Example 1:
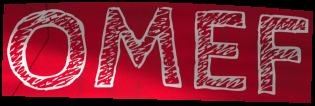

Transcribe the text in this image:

OMEF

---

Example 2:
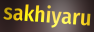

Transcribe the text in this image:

sakhiyaru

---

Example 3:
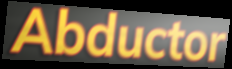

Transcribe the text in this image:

Abductor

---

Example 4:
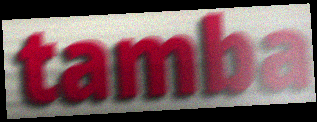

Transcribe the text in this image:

tamba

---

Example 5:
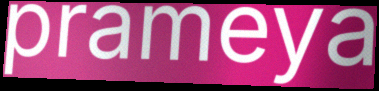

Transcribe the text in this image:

prameya